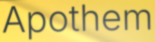
Apothem